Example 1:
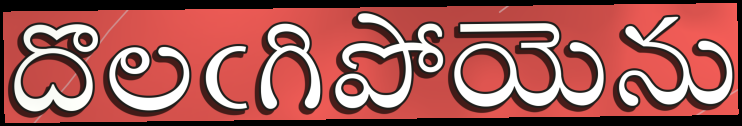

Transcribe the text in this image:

దొలఁగిపోయెను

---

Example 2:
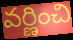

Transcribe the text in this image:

వర్ణించి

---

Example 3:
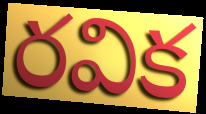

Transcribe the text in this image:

రవిక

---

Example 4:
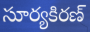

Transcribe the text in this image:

సూర్యకిరణ్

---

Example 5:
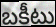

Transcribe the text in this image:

బకీటు